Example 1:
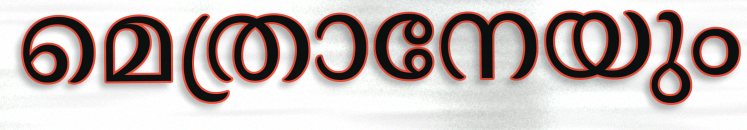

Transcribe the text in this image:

മെത്രാനേയും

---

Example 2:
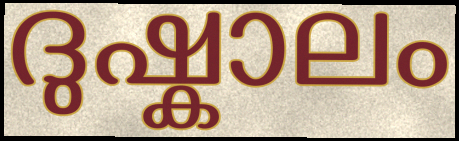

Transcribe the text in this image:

ദുഷ്കാലം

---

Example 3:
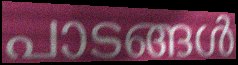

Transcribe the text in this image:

പാടങ്ങൾ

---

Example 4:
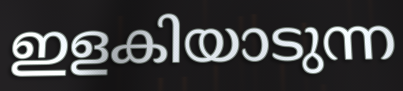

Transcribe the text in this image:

ഇളകിയാടുന്ന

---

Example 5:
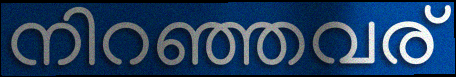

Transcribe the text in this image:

നിറഞ്ഞവര്